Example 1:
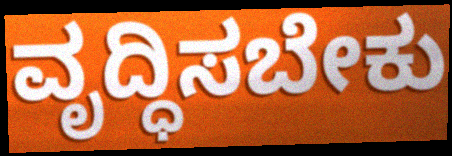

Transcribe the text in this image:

ವೃದ್ಧಿಸಬೇಕು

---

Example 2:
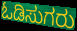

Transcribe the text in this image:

ಓಡಿಸುಗರು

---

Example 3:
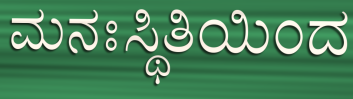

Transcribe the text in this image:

ಮನಃಸ್ಥಿತಿಯಿಂದ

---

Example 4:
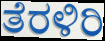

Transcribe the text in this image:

ತೆರಳಿರಿ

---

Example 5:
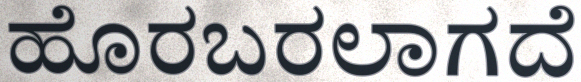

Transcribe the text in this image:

ಹೊರಬರಲಾಗದೆ